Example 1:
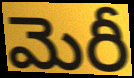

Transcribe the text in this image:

మెరీ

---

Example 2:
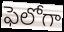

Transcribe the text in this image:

ఫెలోగా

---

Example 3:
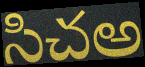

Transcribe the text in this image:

సిచఅ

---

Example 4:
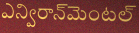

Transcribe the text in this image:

ఎన్విరాన్‌మెంటల్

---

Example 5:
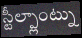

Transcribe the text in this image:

స్టీల్ప్లాంట్ను